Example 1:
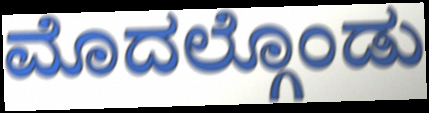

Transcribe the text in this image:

ಮೊದಲ್ಗೊಂಡು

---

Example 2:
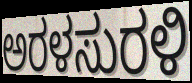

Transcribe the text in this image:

ಅರಳಸುರಳಿ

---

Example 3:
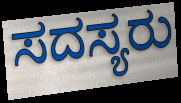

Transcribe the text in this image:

ಸದಸ್ಯರು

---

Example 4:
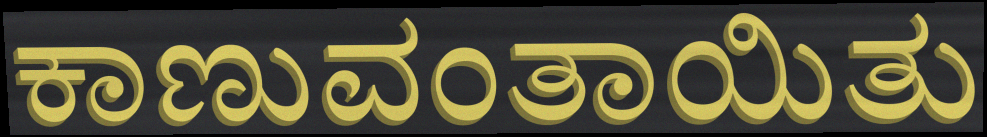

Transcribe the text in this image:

ಕಾಣುವಂತಾಯಿತು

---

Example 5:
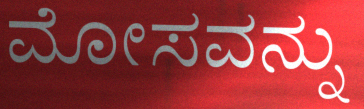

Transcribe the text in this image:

ಮೋಸವನ್ನು